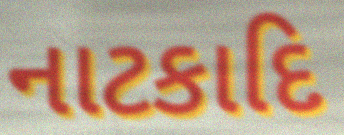
નાટકાદિ